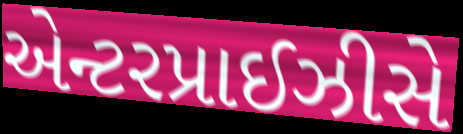
એન્ટરપ્રાઈઝીસે